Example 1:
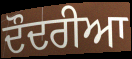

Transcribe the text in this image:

ਦੌਦਰੀਆ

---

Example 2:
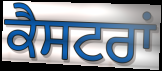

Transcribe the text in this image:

ਕੈਸਟਰਾਂ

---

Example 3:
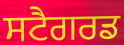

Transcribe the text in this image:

ਸਟੈਗਰਡ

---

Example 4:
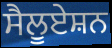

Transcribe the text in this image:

ਸੈਲੂਏਸ਼ਨ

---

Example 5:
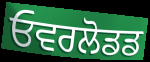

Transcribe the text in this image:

ਓਵਰਲੋਡਡ